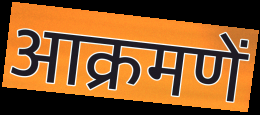
आक्रमणें